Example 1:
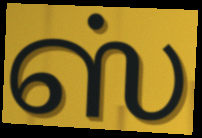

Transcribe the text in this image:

ஸ்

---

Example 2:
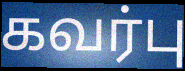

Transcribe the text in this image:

கவர்பு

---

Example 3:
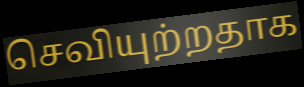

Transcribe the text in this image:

செவியுற்றதாக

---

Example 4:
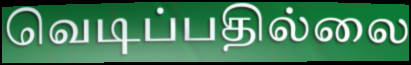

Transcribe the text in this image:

வெடிப்பதில்லை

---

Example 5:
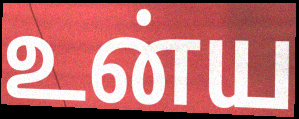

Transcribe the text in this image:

உன்ய